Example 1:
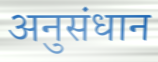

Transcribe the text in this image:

अनुसंधान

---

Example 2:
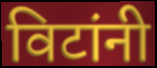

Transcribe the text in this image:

विटांनी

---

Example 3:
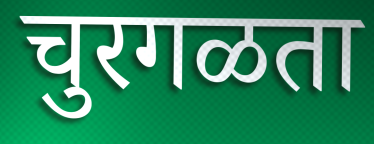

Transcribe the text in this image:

चुरगळता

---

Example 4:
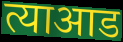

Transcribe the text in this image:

त्याआड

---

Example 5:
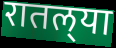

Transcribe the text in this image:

रातल्या